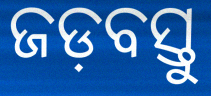
ଜଡ଼ବସ୍ତୁ